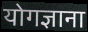
योगज्ञाना